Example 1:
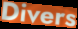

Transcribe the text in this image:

Divers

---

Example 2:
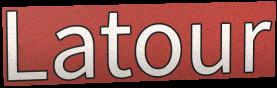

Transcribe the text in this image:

Latour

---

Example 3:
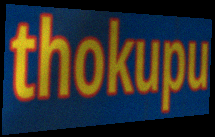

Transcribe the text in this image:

thokupu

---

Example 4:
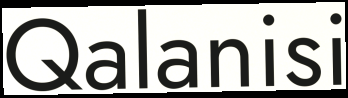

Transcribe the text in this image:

Qalanisi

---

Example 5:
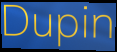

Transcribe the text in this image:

Dupin